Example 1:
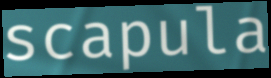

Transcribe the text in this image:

scapula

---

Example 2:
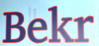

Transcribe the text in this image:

Bekr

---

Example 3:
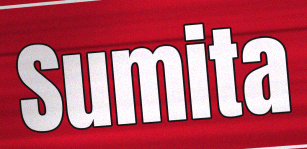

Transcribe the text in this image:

Sumita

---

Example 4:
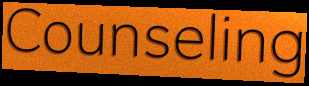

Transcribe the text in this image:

Counseling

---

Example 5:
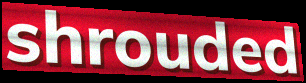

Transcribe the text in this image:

shrouded